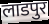
लाडपुर